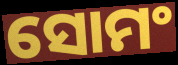
ସୋମଂ